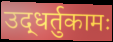
उद्धर्तुकामः